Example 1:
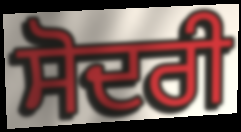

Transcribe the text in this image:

ਸੋਦਰੀ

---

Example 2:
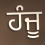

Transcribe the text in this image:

ਹੰਜੂ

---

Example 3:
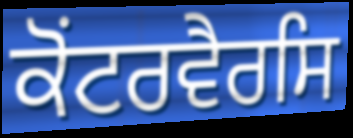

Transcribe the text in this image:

ਕੋਂਟਰਵੈਰਸਿ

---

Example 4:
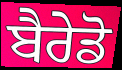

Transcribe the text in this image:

ਬੈਰੇਡੋ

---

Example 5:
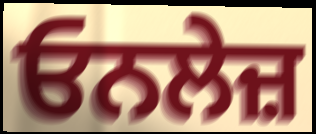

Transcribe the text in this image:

ਓਨਲੇਜ਼